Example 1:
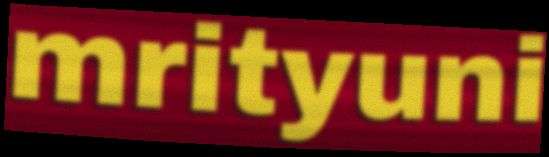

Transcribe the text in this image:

mrityuni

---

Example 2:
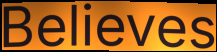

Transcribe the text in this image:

Believes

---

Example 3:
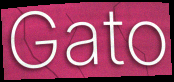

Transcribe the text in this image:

Gato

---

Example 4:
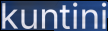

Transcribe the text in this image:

kuntini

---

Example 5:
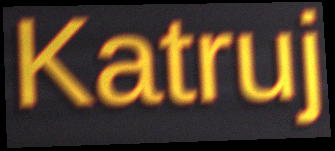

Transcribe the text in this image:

Katruj